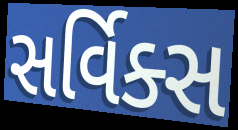
સર્વિક્સ